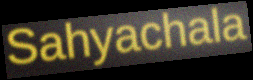
Sahyachala